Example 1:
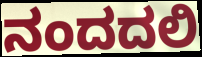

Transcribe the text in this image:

ನಂದದಲಿ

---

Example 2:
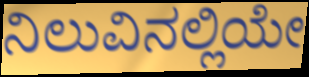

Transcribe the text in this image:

ನಿಲುವಿನಲ್ಲಿಯೇ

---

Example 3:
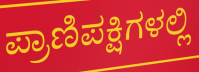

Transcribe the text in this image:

ಪ್ರಾಣಿಪಕ್ಷಿಗಳಲ್ಲಿ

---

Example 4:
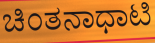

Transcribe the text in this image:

ಚಿಂತನಾಧಾಟಿ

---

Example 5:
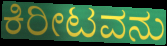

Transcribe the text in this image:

ಕಿರೀಟವನು